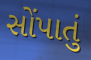
સોંપાતું